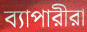
ব্যাপারীরা